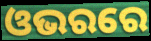
ଓଭରରେ